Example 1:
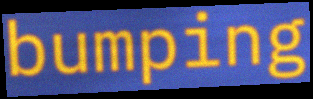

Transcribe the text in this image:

bumping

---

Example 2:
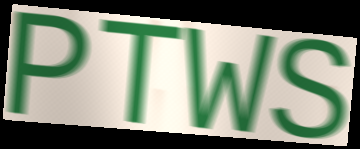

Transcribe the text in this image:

PTWS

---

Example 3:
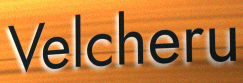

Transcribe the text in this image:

Velcheru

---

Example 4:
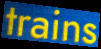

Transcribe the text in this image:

trains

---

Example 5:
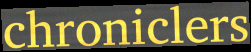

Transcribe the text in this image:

chroniclers